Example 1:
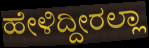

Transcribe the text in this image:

ಹೇಳಿದ್ದೀರಲ್ಲಾ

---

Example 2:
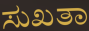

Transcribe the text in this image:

ಸುಖತಾ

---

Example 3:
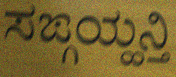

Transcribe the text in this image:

ಸಙ್ಗಯ್ಹನ್ತಿ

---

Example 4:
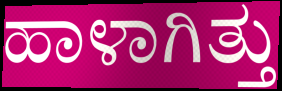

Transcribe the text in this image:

ಹಾಳಾಗಿತ್ತು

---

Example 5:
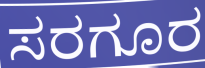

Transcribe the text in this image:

ಸರಗೂರ